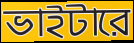
ভাইটারে